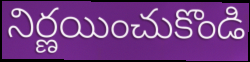
నిర్ణయించుకొండి